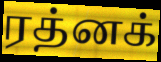
ரத்னக்